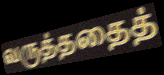
வருத்ததைத்